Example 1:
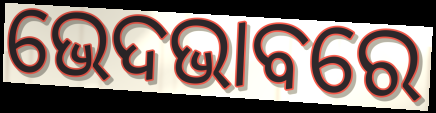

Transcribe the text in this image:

ଭେଦଭାବରେ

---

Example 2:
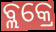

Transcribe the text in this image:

ବ୍ଲକ୍ରେ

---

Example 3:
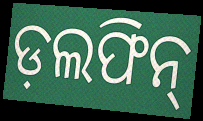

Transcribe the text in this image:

ଡ଼ଲଫିନ୍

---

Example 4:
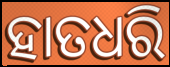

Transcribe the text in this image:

ହାତଧରି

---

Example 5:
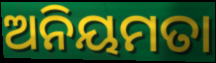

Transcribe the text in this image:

ଅନିୟମତା